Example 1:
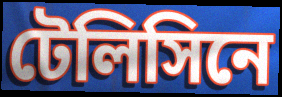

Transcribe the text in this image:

টেলিসিনে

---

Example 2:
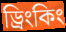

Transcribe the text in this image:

ড্রিংকিং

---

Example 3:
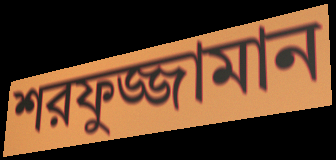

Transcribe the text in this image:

শরফুজ্জামান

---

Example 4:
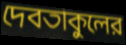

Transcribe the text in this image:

দেবতাকুলের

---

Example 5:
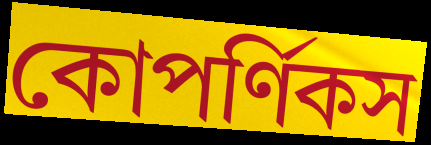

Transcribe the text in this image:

কোপর্ণিকস